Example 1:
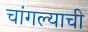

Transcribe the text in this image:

चांगल्याची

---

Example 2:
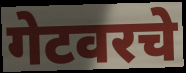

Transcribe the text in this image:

गेटवरचे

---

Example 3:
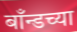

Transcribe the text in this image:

बाँन्डच्या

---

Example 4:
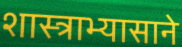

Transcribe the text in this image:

शास्त्राभ्यासाने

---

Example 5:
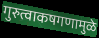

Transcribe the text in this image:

गुरुत्वाकषगणामुळे